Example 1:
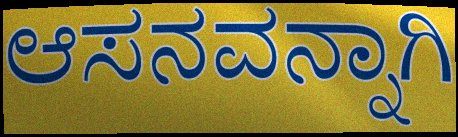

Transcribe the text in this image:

ಆಸನವನ್ನಾಗಿ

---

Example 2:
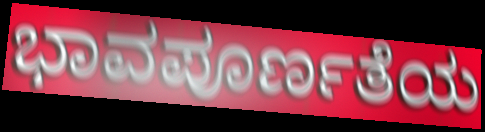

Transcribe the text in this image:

ಭಾವಪೂರ್ಣತೆಯ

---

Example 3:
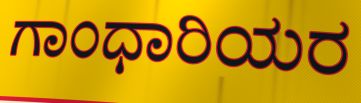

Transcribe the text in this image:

ಗಾಂಧಾರಿಯರ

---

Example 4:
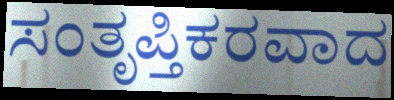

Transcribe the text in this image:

ಸಂತೃಪ್ತಿಕರವಾದ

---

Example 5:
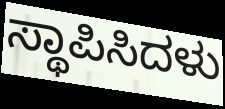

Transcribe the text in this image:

ಸ್ಥಾಪಿಸಿದಳು